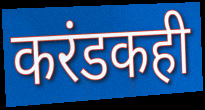
करंडकही